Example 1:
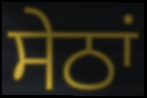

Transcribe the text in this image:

ਸੇਠਾਂ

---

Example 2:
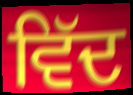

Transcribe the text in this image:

ਵਿੱਦ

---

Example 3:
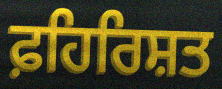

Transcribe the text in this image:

ਫ਼ਹਿਰਿਸ਼ਤ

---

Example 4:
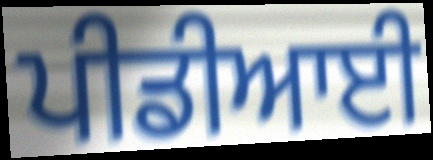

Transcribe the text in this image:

ਪੀਡੀਆਈ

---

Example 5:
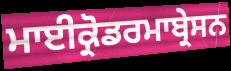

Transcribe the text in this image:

ਮਾਈਕ੍ਰੋਡਰਮਾਬ੍ਰੇਸਨ